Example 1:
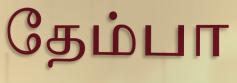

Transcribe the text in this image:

தேம்பா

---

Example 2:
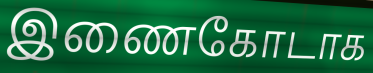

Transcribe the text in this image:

இணைகோடாக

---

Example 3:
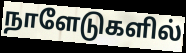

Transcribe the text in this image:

நாளேடுகளில்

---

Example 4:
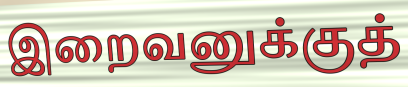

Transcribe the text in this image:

இறைவனுக்குத்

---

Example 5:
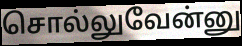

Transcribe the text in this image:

சொல்லுவேன்னு